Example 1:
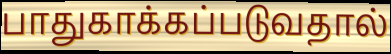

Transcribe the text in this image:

பாதுகாக்கப்படுவதால்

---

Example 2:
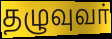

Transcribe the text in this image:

தழுவுவர்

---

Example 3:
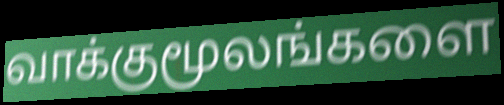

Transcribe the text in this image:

வாக்குமூலங்களை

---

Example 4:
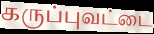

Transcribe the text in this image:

கருப்புவட்டை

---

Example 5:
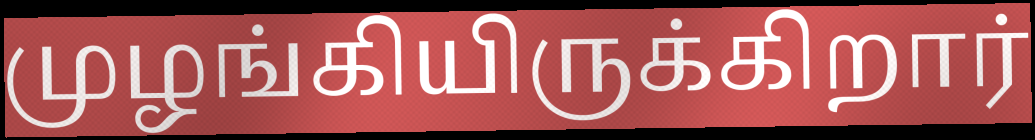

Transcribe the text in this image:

முழங்கியிருக்கிறார்